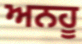
ਅਨਹੂ